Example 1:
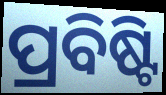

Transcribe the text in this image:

ପ୍ରବିଷ୍ଟି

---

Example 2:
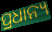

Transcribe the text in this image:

ପ୍ରଧାନ୍ୟ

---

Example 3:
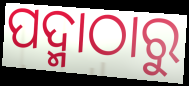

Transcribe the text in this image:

ପଦ୍ମାଠାରୁ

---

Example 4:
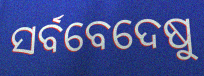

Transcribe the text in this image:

ସର୍ବବେଦେଷୁ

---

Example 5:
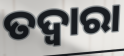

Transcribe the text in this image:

ତଦ୍ବାରା